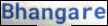
Bhangare